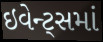
ઇવેન્ટ્સમાં